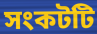
সংকটটি